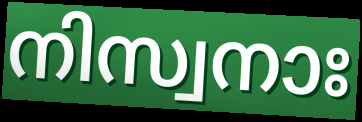
നിസ്വനാഃ